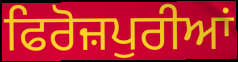
ਫਿਰੋਜ਼ਪੁਰੀਆਂ